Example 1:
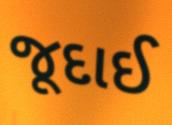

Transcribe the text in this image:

જૂદાઈ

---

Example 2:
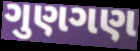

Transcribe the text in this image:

ગુણગણ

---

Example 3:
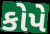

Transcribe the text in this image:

કોપે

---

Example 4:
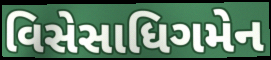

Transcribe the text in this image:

વિસેસાધિગમેન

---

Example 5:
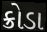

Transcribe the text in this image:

ક્રોડા